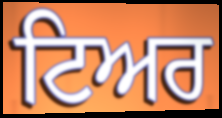
ਟਿਅਰ